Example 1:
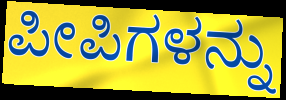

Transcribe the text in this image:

ಪೀಪಿಗಳನ್ನು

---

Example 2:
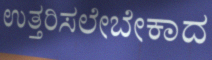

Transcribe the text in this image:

ಉತ್ತರಿಸಲೇಬೇಕಾದ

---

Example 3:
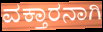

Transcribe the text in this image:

ವಕ್ತಾರನಾಗಿ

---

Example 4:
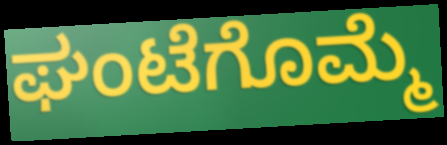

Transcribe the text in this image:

ಘಂಟೆಗೊಮ್ಮೆ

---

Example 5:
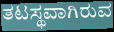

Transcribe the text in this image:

ತಟಸ್ಥವಾಗಿರುವ